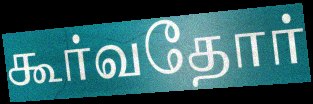
கூர்வதோர்